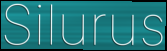
Silurus